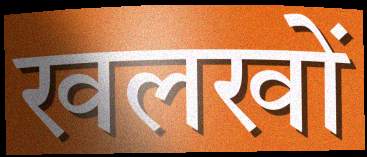
खलखों